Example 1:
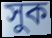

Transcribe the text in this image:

সুক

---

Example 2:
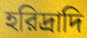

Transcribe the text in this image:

হরিদ্রাদি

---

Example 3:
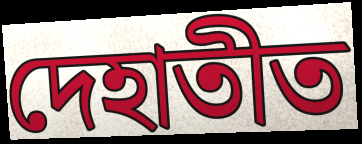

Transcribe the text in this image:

দেহাতীত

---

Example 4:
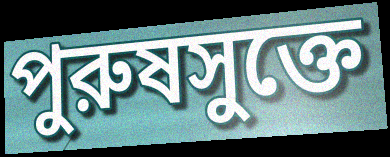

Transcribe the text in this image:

পুরুষসুক্তে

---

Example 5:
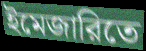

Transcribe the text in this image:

ইমেজারিতে